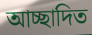
আচ্ছাদিত